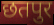
छतपुर